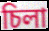
চিলা